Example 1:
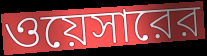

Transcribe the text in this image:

ওয়েসারের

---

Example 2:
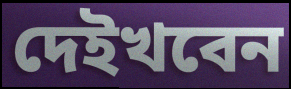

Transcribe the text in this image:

দেইখবেন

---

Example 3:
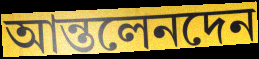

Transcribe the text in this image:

আন্তলেনদেন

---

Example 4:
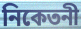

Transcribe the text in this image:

নিকেতনী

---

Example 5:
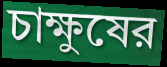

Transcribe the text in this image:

চাক্ষুষের